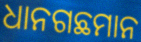
ଧାନଗଛମାନ